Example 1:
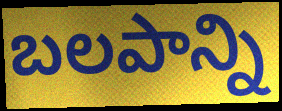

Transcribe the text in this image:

బలపాన్ని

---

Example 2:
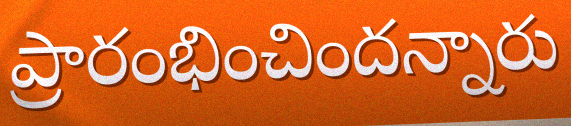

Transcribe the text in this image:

ప్రారంభించిందన్నారు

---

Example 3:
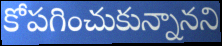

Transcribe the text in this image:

కోపగించుకున్నానని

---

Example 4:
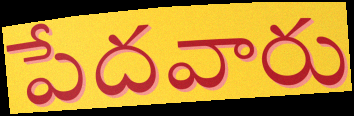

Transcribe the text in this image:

పేదవారు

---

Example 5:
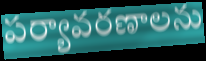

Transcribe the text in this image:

పర్యావరణాలను